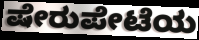
ಷೇರುಪೇಟೆಯ